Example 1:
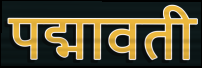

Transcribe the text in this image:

पद्मावती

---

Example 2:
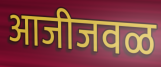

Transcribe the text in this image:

आजीजवळ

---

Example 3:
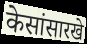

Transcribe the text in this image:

केसांसारखे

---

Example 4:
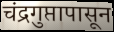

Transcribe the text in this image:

चंद्रगुप्तापासून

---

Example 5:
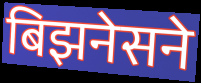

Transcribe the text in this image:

बिझनेसने